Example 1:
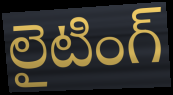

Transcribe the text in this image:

లైటింగ్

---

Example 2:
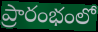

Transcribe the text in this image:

ప్రారంభంలో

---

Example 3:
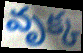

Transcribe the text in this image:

వృక్క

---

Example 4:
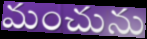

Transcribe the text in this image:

మంచును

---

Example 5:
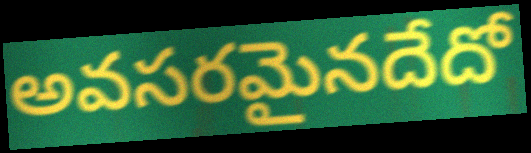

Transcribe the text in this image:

అవసరమైనదేదో